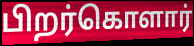
பிறர்கொளார்